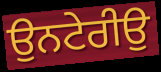
ਉਨਟੇਰੀਉ